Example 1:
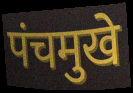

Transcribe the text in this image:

पंचमुखे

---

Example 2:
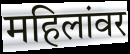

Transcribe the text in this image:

महिलांवर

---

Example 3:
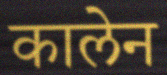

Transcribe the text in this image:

कालेन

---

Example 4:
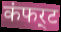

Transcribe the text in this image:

कंफर्ट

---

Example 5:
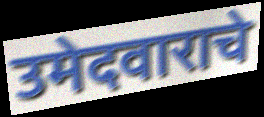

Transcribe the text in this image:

उमेदवाराचे